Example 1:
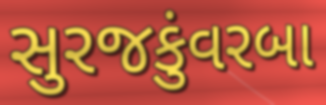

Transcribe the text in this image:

સુરજકુંવરબા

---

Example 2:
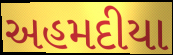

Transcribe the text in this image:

અહમદીયા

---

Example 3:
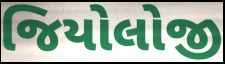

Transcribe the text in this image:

જિયોલોજી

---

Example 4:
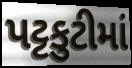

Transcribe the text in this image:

પટ્ટકુટીમાં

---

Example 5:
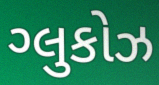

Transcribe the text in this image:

ગ્લુકોઝ